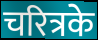
चरित्रके